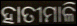
ହାତୀମାଳି